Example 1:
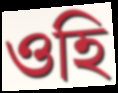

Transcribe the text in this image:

ওহি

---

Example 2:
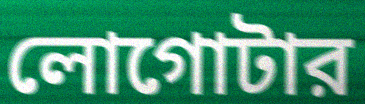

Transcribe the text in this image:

লোগোটার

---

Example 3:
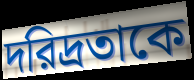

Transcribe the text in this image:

দরিদ্রতাকে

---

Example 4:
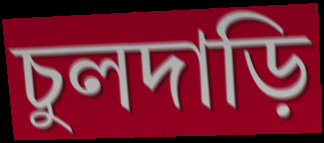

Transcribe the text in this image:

চুলদাড়ি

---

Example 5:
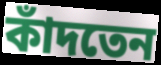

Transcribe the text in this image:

কাঁদতেন